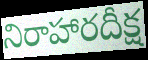
నిరాహారదీక్ష